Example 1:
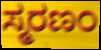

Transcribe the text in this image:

ಸ್ಮರಣಂ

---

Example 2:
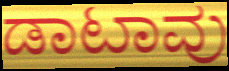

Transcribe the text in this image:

ಡಾಟಾವು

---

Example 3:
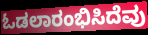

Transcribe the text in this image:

ಓಡಲಾರಂಭಿಸಿದೆವು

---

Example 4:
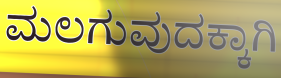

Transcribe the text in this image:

ಮಲಗುವುದಕ್ಕಾಗಿ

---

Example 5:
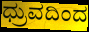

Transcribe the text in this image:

ಧ್ರುವದಿಂದ